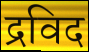
द्रविद